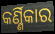
କର୍ଣ୍ଣିକାର